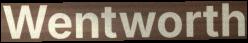
Wentworth